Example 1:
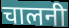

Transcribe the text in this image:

चालनी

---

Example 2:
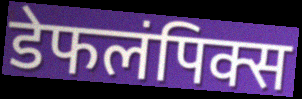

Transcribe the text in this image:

डेफलंपिक्स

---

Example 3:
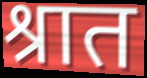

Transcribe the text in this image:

श्रात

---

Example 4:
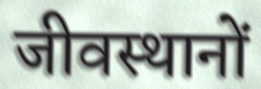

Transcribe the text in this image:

जीवस्थानों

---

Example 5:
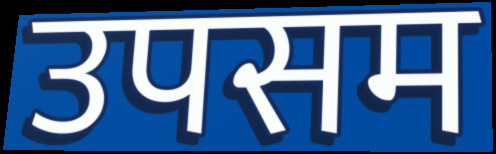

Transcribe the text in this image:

उपसम